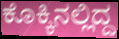
ಕೊಕ್ಕಿನಲ್ಲಿದ್ದ